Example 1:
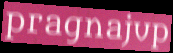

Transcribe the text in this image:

pragnajup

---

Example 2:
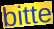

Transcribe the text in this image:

bitte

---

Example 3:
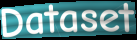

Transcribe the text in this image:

Dataset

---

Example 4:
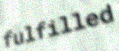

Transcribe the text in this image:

fulfilled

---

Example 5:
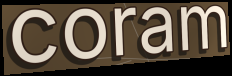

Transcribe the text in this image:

coram